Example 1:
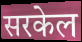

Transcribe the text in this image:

सरकेल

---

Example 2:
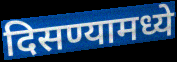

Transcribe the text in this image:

दिसण्यामध्ये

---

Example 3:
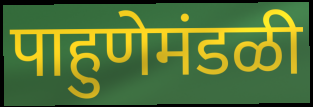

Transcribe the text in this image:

पाहुणेमंडळी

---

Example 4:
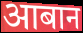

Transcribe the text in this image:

आबान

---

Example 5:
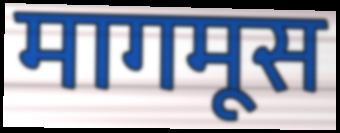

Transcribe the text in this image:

मागमूस